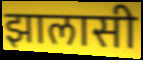
झालासी